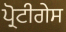
ਪ੍ਰੋਟੀਗੇਸ